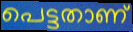
പെട്ടതാണ്